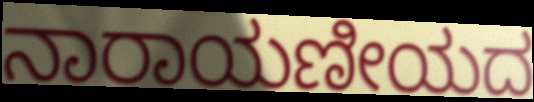
ನಾರಾಯಣೀಯದ